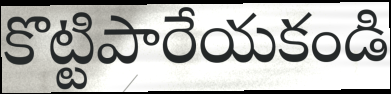
కొట్టిపారేయకండి